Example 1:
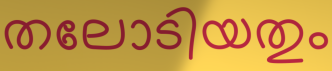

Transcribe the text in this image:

തലോടിയതും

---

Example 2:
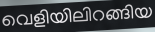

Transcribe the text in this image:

വെളിയിലിറങ്ങിയ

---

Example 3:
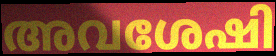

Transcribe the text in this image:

അവശേഷി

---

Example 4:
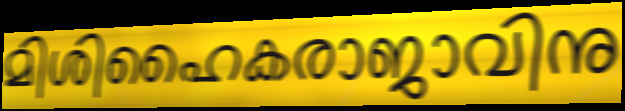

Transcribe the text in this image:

മിശിഹൈകരാജാവിനു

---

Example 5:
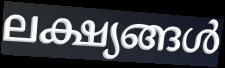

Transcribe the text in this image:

ലക്ഷ്യങ്ങൾ